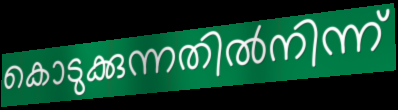
കൊടുക്കുന്നതിൽനിന്ന്